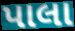
પાલા